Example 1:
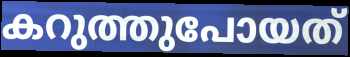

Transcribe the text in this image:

കറുത്തുപോയത്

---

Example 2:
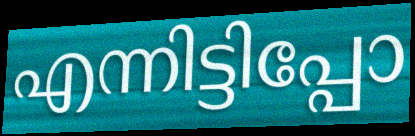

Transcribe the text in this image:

എന്നിട്ടിപ്പോ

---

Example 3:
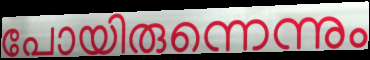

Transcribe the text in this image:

പോയിരുന്നെന്നും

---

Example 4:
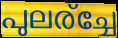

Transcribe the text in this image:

പുലര്ച്ചേ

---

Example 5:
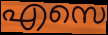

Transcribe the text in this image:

എസെ